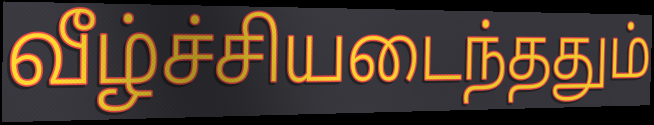
வீழ்ச்சியடைந்ததும்